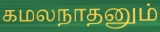
கமலநாதனும்